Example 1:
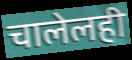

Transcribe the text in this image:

चालेलही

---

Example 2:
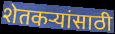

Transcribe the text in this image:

शेतकर्‍यांसाठी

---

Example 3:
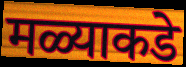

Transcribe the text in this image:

मळ्याकडे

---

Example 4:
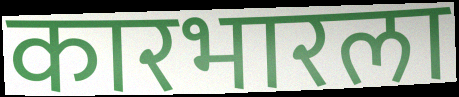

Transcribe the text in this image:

कारभारला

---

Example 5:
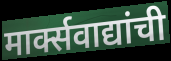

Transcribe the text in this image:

मार्क्सवाद्यांची